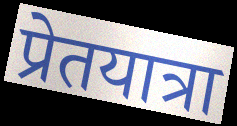
प्रेतयात्रा